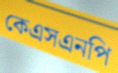
কেএসএনপি